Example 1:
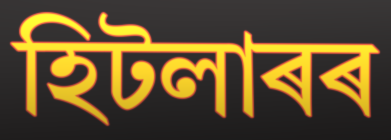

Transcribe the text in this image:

হিটলাৰৰ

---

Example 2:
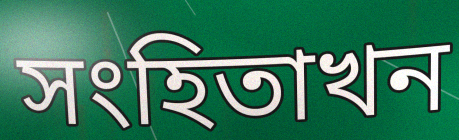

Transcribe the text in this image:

সংহিতাখন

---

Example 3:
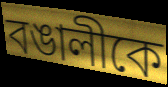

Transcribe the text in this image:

বঙালীকে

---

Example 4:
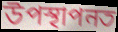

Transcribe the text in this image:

উপস্থাপনত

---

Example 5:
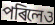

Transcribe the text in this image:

পৰিলেও